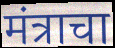
मंत्राचा